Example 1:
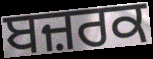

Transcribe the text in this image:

ਬਜ਼ਰਕ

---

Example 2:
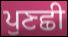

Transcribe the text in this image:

ਪੁਣਛੀ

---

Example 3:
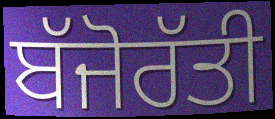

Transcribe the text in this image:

ਬੱਜੋਰੱਤੀ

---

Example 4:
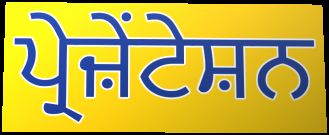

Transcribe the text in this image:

ਪ੍ਰੇਜ਼ੇਂਟੇਸ਼ਨ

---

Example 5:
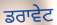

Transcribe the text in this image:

ਡਰਾਵੇਟ